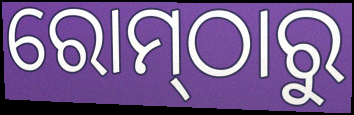
ରୋମ୍‌ଠାରୁ